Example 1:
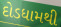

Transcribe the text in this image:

દોડધામથી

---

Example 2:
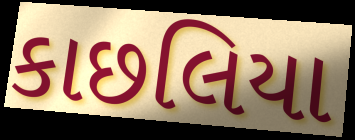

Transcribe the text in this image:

કાછલિયા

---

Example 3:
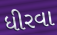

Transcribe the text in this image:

ધીરવા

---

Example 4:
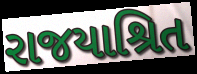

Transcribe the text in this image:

રાજયાશ્રિત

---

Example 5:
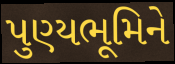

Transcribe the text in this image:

પુણ્યભૂમિને